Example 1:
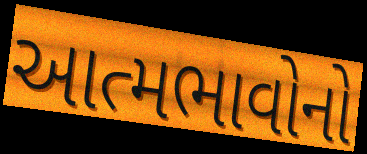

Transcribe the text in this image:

આત્મભાવોનો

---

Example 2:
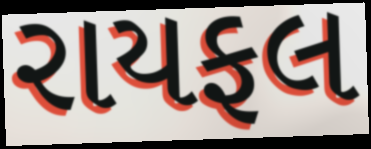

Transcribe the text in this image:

રાયફલ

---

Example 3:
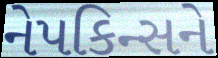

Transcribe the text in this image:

નેપકિન્સને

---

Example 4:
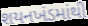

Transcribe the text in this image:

શયનખંડમાંથી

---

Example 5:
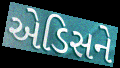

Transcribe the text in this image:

એડિસને